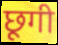
छूगी